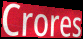
Crores